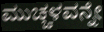
ಮುಚ್ಚಳವನ್ನೇ